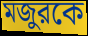
মজুরকে